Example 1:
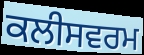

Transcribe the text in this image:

ਕਲੀਸਵਰਮ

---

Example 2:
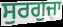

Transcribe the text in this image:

ਸੁਰਗੁਜਾ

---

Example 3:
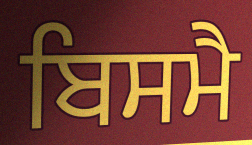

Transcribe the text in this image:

ਬਿਸਮੈ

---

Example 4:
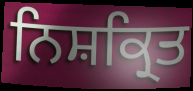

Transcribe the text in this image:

ਨਿਸ਼ਕ੍ਰਿਤ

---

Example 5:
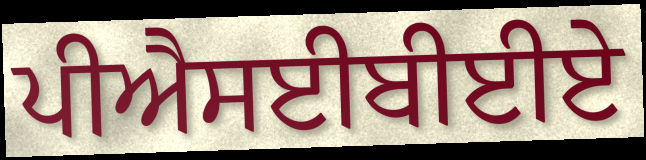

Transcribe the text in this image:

ਪੀਐਸਈਬੀਈਏ